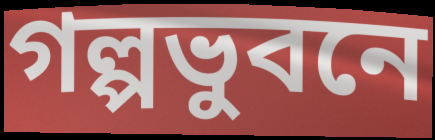
গল্পভুবনে